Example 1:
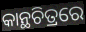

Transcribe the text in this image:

କାନ୍ଥଚିତ୍ରରେ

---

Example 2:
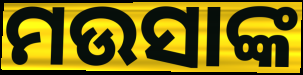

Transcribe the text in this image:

ମଉସାଙ୍କ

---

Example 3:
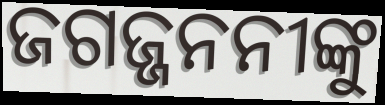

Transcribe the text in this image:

ଜଗଜ୍ଜନନୀଙ୍କୁ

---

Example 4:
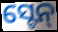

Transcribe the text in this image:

ସ୍ଟେନ୍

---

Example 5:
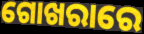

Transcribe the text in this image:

ଗୋଖରାରେ